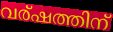
വര്ഷത്തിന്